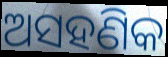
ଅସହଣିକ